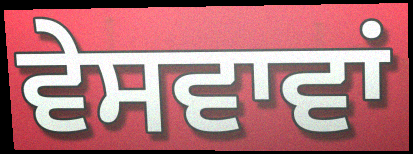
ਵੇਸਵਾਵਾਂ